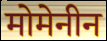
मोमेनीन